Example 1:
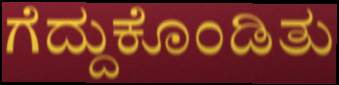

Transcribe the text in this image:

ಗೆದ್ದುಕೊಂಡಿತು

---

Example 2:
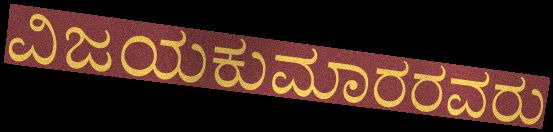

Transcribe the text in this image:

ವಿಜಯಕುಮಾರರವರು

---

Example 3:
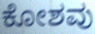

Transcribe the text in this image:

ಕೋಶವು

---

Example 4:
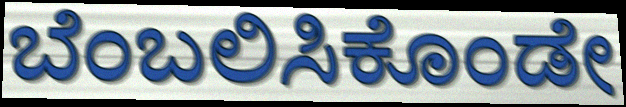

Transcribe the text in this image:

ಬೆಂಬಲಿಸಿಕೊಂಡೇ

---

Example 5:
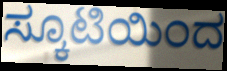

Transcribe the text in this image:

ಸ್ಕೂಟಿಯಿಂದ